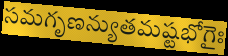
సమగృణన్యుతమష్టభోగైః